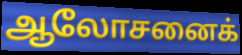
ஆலோசனைக்